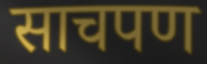
साचपण